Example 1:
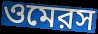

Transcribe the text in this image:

ওমেরস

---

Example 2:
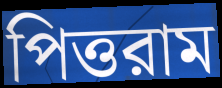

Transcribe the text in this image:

পিত্তরাম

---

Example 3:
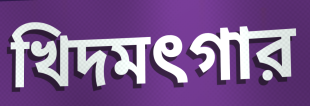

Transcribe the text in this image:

খিদমৎগার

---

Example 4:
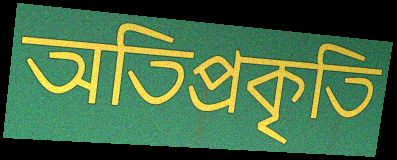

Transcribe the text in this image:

অতিপ্রকৃতি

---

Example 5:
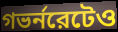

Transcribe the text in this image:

গভর্নরেটেও